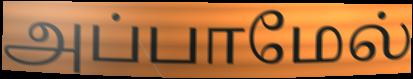
அப்பாமேல்